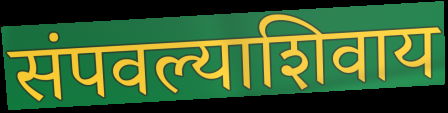
संपवल्याशिवाय